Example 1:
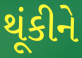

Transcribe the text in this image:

થૂંકીને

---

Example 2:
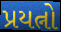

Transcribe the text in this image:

પ્રયત્નો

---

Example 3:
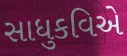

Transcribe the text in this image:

સાધુકવિએ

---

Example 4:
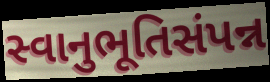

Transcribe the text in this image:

સ્વાનુભૂતિસંપન્ન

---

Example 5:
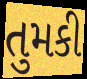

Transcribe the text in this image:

તુમકી